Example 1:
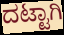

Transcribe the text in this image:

ದಟ್ಟಾಗಿ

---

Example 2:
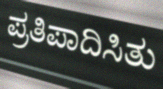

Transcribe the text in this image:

ಪ್ರತಿಪಾದಿಸಿತು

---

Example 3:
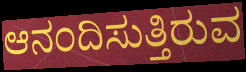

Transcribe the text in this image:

ಆನಂದಿಸುತ್ತಿರುವ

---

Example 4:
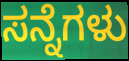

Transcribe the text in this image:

ಸನ್ನೆಗಳು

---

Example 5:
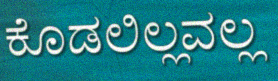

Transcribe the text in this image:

ಕೊಡಲಿಲ್ಲವಲ್ಲ